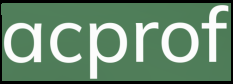
acprof